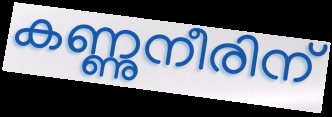
കണ്ണുനീരിന്